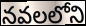
నవలలోని